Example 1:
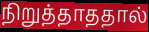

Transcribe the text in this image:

நிறுத்தாததால்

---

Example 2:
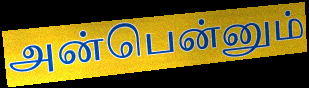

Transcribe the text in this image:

அன்பென்னும்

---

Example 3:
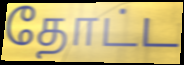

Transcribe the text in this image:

தோட்ட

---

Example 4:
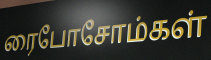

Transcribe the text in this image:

ரைபோசோம்கள்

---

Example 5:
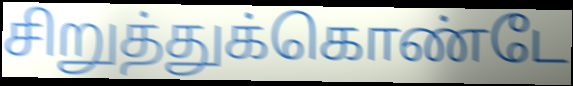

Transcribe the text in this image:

சிறுத்துக்கொண்டே